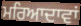
ਮਰਿਆਦਾਵਾਂ